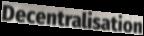
Decentralisation